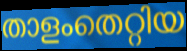
താളംതെറ്റിയ